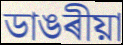
ডাঙৰীয়া